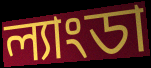
ল্যাংডা